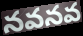
నవనవ